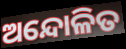
ଅନ୍ଦୋଳିତ